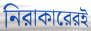
নিরাকারেরই